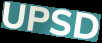
UPSD